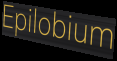
Epilobium